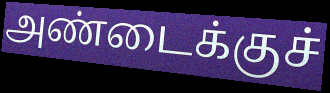
அண்டைக்குச்